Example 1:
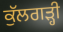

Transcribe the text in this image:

ਕੁੱਲਗੜ੍ਹੀ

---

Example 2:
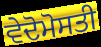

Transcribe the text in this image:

ਵੇਦੋਮੋਸਤੀ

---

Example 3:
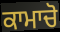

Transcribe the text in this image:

ਕਾਮਾਚੋ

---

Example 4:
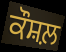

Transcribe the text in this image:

ਕੌਸ਼ਲ਼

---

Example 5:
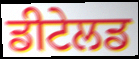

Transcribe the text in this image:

ਡੀਟੇਲਡ